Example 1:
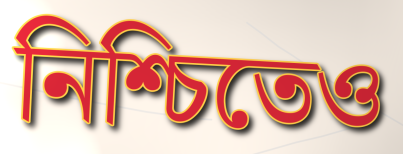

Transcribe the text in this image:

নিশ্চিতেও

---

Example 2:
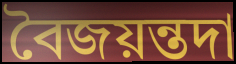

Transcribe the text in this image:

বৈজয়ন্তদা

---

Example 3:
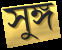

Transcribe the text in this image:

সুঙ্গ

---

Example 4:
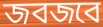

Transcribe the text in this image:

জবজবে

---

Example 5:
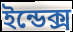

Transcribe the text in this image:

ইন্ডেক্স